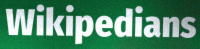
Wikipedians